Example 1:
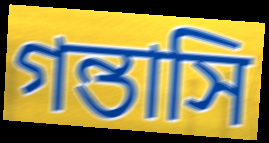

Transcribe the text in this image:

গন্তাসি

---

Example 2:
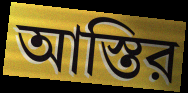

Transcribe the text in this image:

আস্তির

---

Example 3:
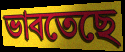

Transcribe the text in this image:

ভাবতেছে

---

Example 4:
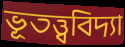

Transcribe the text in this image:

ভূতত্ত্ববিদ্যা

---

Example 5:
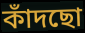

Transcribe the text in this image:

কাঁদছো